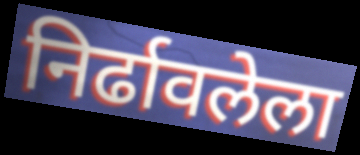
निर्ढावलेला